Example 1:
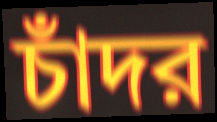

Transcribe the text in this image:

চাঁদর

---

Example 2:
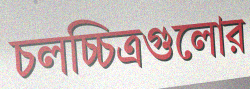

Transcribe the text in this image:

চলচ্চিত্রগুলোর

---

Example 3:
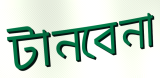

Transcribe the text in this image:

টানবেনা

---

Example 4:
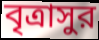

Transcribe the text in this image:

বৃত্রাসুর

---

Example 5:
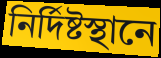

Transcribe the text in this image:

নির্দিষ্টস্থানে